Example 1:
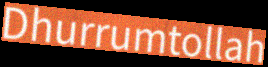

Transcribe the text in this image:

Dhurrumtollah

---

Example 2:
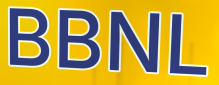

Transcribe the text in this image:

BBNL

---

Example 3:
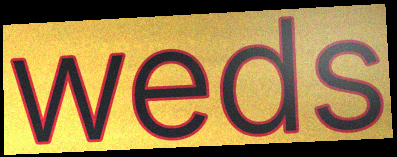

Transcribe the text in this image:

weds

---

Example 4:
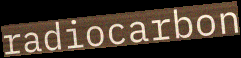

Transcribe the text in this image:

radiocarbon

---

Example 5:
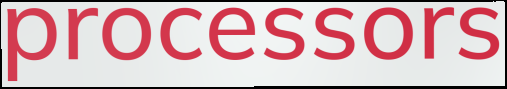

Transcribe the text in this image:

processors